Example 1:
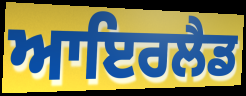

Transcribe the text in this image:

ਆਇਰਲੈਡ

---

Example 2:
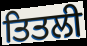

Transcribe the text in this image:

ਤਿਤਲੀ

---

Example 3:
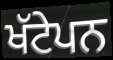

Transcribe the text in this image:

ਖੱਟੇਪਨ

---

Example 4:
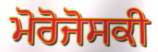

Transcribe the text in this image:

ਮੋਰੋਜੋਸਕੀ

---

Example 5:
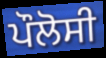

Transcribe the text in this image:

ਪੌਲੋਸੀ